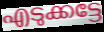
എടുക്കട്ടേ